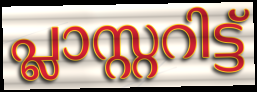
പ്ലാസ്റ്ററിട്ട്